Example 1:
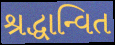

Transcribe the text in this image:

શ્રદ્ધાન્વિત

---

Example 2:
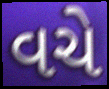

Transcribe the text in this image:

વચે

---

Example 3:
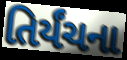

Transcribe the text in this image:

તિર્યંચના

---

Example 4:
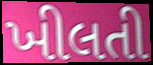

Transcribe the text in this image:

ખીલતી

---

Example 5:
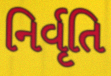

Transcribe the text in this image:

નિર્વૃતિ